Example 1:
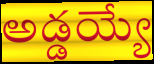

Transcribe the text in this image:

అడ్డయ్యే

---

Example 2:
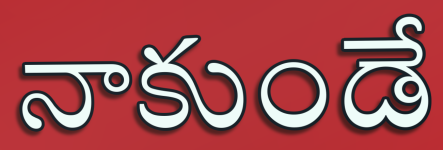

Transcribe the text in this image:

నాకుండే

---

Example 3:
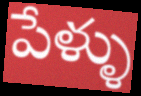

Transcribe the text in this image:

పేళ్ళు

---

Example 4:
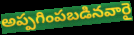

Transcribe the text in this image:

అప్పగింపబడినవారై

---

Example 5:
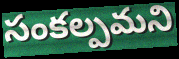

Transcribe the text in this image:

సంకల్పమని